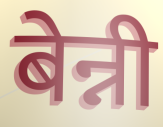
बेन्नी